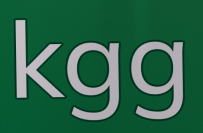
kgg